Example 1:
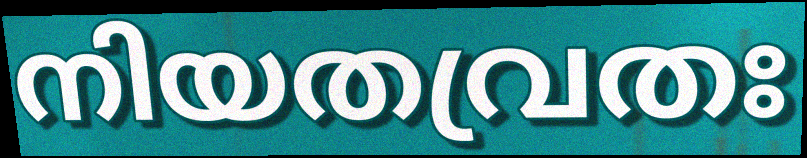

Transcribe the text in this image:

നിയതവ്രതഃ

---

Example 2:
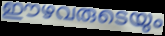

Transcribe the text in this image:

ഈഴവരുടെയും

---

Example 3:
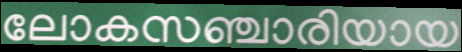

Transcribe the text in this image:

ലോകസഞ്ചാരിയായ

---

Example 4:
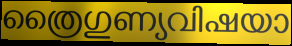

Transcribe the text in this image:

ത്രൈഗുണ്യവിഷയാ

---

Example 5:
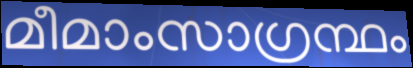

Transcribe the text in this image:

മീമാംസാഗ്രന്ഥം